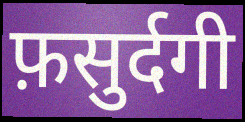
फ़सुर्दगी